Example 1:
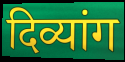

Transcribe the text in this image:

दिव्यांग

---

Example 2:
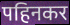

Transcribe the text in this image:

पहिनकर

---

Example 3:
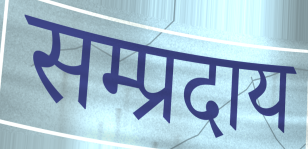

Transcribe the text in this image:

सम्प्रदाय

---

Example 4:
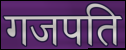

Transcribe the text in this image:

गजपति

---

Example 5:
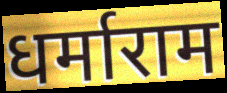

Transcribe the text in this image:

धर्माराम